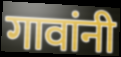
गावांनी